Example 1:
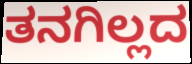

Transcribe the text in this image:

ತನಗಿಲ್ಲದ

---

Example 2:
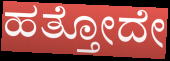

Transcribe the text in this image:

ಹತ್ತೋದೇ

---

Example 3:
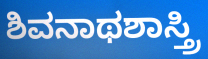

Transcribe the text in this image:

ಶಿವನಾಥಶಾಸ್ತ್ರಿ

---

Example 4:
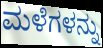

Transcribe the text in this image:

ಮಳೆಗಳನ್ನು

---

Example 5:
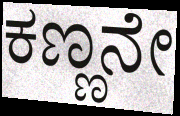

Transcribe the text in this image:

ಕಣ್ಣನೇ